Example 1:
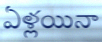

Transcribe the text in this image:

ఏళ్లయినా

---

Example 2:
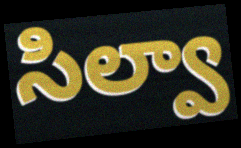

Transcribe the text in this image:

సిల్వా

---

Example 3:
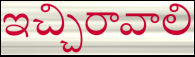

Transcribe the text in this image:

ఇచ్చిరావాలి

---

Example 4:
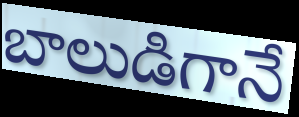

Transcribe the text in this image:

బాలుడిగానే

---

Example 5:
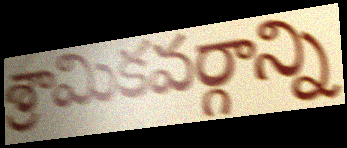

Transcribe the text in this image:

శ్రామికవర్గాన్ని